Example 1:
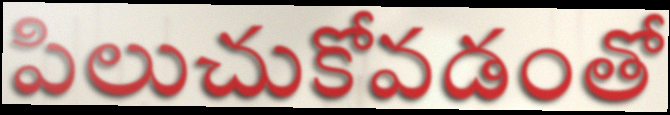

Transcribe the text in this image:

పిలుచుకోవడంతో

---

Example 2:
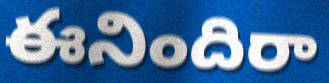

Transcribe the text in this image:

ఈనిందిరా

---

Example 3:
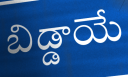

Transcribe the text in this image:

బిడ్డాయే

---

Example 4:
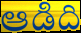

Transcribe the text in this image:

ఆడిది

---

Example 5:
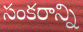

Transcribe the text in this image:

సంకరాన్ని